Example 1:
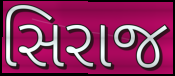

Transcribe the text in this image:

સિરાજ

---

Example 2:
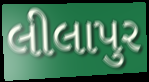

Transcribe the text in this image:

લીલાપુર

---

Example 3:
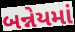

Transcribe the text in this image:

બન્નેયમાં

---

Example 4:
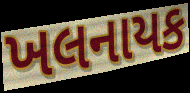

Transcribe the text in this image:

ખલનાયક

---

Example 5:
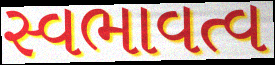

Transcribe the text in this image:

સ્વભાવત્વ